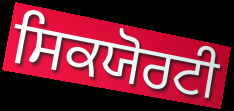
ਸਿਕਯੋਰਟੀ